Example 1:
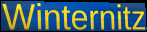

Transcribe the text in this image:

Winternitz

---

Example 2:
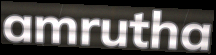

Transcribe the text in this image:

amrutha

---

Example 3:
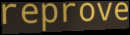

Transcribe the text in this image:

reprove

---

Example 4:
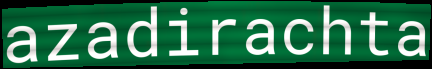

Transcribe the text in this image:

azadirachta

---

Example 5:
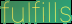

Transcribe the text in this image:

fulfills